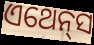
ଏଥେନ୍‌ସ